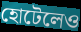
হোটেলেও